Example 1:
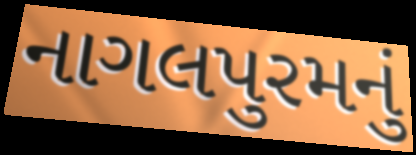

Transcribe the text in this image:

નાગલપુરમનું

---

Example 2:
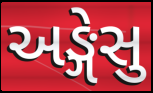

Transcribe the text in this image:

અઙ્ગેસુ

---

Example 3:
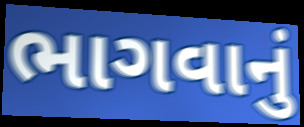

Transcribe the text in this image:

ભાગવાનું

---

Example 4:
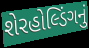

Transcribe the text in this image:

શેરહોલ્ડિંગનું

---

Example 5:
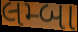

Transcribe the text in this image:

લમ્બા